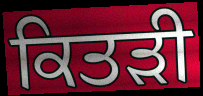
ਕਿਤੜੀ